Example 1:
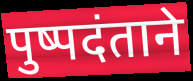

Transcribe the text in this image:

पुष्पदंताने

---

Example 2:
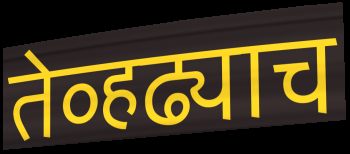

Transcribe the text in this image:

तेव्हढ्याच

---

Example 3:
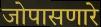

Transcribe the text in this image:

जोपासणारे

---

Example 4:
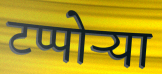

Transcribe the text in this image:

टप्पोऱ्या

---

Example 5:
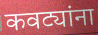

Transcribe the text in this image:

कवट्यांना